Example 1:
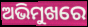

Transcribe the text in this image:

ଅଭିମୁଖରେ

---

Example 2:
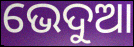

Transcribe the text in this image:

ଭେଦୁଆ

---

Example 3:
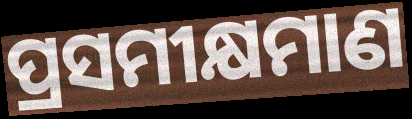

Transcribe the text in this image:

ପ୍ରସମୀକ୍ଷମାଣ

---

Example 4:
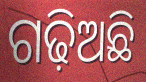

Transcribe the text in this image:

ଗଢ଼ିଅଛି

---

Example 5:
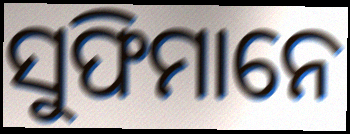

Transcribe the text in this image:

ସୁଫିମାନେ